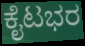
ಕೈಟಭರ